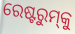
ରେଷ୍ଟରୁମ୍‌କୁ